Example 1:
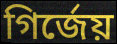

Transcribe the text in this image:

গির্জেয়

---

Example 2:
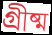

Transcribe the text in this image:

গ্রীষ্ম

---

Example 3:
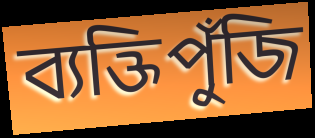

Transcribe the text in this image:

ব্যক্তিপুঁজি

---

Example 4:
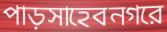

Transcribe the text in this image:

পাড়সাহেবনগরে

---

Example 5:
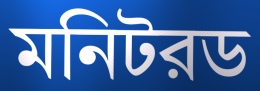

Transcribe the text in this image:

মনিটরড